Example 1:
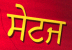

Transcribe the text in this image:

ਸੇਟਜ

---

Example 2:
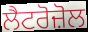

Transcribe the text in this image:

ਲੈਟਰੋਜ਼ੋਲ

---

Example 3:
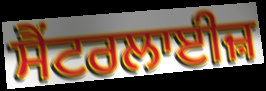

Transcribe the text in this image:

ਸੈਂਟਰਲਾਈਜ਼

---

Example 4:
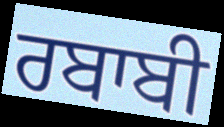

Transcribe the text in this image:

ਰਬਾਬੀ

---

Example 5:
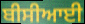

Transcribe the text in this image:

ਬੀਸੀਆਈ